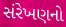
સંરેખણનો